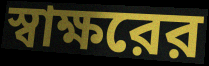
স্বাক্ষরের